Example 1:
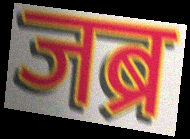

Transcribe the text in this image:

जब्र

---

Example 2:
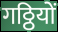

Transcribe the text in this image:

गठ्ठियों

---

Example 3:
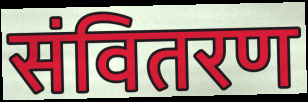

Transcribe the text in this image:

संवितरण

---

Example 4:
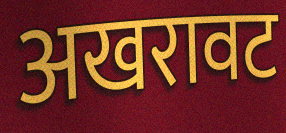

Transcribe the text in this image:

अखरावट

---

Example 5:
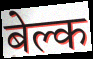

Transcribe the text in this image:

बेल्क